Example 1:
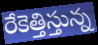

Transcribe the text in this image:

రేకెత్తిస్తున్న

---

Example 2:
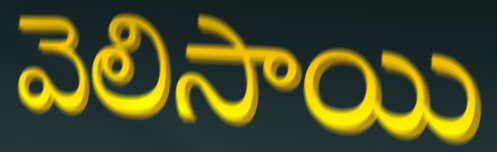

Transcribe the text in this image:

వెలిసాయి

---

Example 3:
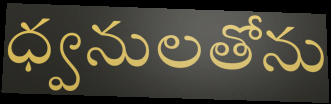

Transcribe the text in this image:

ధ్వనులతోను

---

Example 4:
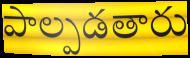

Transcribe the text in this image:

పాల్పడతారు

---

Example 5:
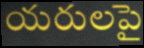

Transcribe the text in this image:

యరులపై